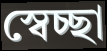
স্বেচ্ছা